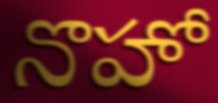
నొహో